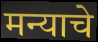
मन्याचे